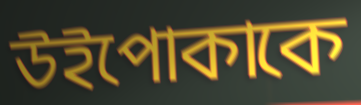
উইপোকাকে